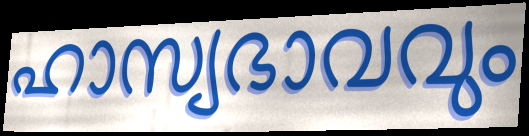
ഹാസ്യഭാവവും